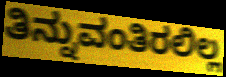
ತಿನ್ನುವಂತಿರಲಿಲ್ಲ